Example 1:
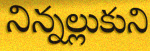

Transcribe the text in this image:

నిన్నల్లుకుని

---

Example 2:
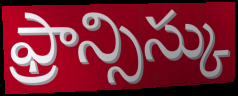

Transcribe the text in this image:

ఫ్రాన్సిస్కు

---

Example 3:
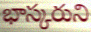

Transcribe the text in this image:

భాస్కరుని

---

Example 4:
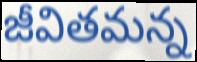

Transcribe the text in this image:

జీవితమన్న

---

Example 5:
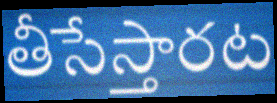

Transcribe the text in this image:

తీసేస్తారట